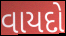
વાયદો